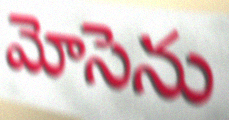
మోసెను